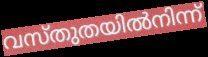
വസ്തുതയിൽനിന്ന്